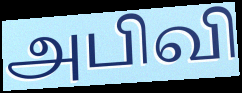
அபிவி